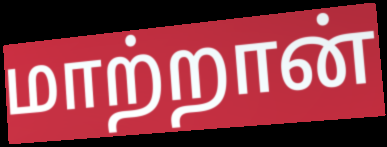
மாற்றான்